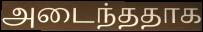
அடைந்ததாக